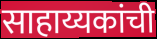
साहाय्यकांची